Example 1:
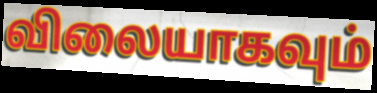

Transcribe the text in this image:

விலையாகவும்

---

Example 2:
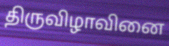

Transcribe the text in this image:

திருவிழாவினை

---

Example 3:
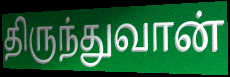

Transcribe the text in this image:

திருந்துவான்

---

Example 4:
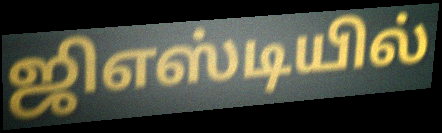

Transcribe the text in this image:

ஜிஎஸ்டியில்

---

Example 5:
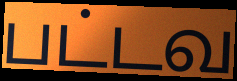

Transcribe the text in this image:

பட்டவ